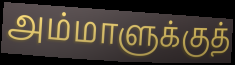
அம்மாளுக்குத்